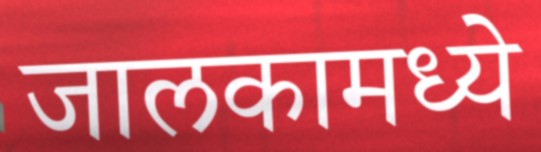
जालकामध्ये